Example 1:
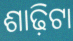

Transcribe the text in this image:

ଶାଢ଼ିଟା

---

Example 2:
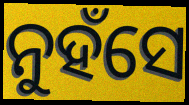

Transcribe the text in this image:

ନୁହଁସେ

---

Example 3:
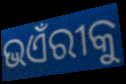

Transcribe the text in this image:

ଭଏଁରୀକୁ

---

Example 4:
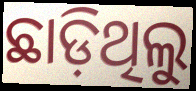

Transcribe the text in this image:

ଛାଡ଼ିଥିଲୁ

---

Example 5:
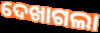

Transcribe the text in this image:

ଦେଖାଗଲା